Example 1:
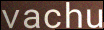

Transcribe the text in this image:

vachu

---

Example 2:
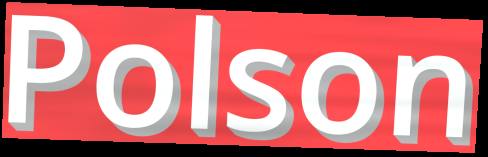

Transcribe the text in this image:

Polson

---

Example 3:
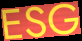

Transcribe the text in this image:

ESG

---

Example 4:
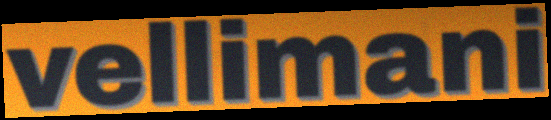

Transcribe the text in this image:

vellimani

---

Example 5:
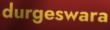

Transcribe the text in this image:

durgeswara